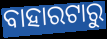
ବାହାରଟାରୁ